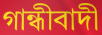
গান্ধীবাদী